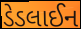
ડેડલાઈન